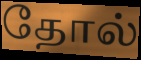
தோல்